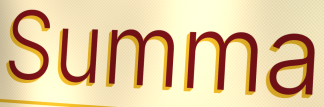
Summa